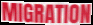
MIGRATION